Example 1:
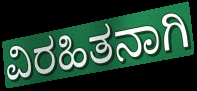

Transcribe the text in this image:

ವಿರಹಿತನಾಗಿ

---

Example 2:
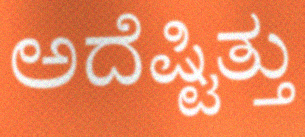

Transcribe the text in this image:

ಅದೆಷ್ಟಿತ್ತು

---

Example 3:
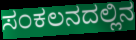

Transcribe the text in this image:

ಸಂಕಲನದಲ್ಲಿನ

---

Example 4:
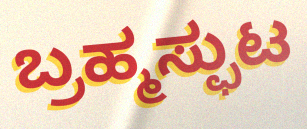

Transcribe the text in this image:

ಬ್ರಹ್ಮಸ್ಫುಟ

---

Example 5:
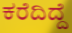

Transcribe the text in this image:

ಕರೆದಿದ್ದೆ